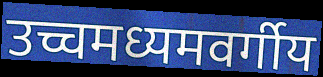
उच्चमध्यमवर्गीय